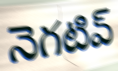
నెగటివ్